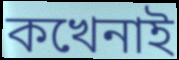
কখেনাই